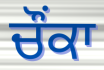
ਚੌੰਕਾ